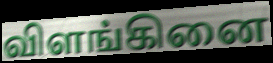
விளங்கினை